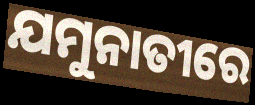
ଯମୁନାତୀରେ